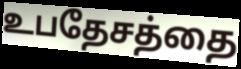
உபதேசத்தை